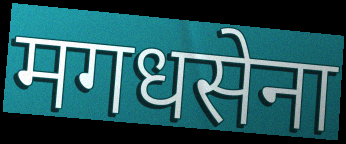
मगधसेना